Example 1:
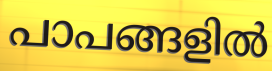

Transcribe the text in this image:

പാപങ്ങളിൽ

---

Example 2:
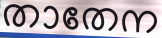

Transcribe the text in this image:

താതേന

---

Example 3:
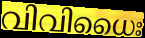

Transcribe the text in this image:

വിവിധൈഃ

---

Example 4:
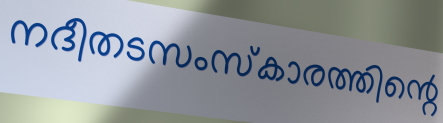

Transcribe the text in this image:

നദീതടസംസ്കാരത്തിന്റെ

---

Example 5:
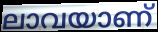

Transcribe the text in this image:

ലാവയാണ്